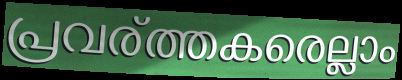
പ്രവര്ത്തകരെല്ലാം